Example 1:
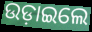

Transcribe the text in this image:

ଉଡ଼ାଇଲେ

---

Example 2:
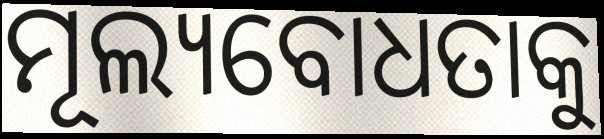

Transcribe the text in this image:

ମୂଲ୍ୟବୋଧତାକୁ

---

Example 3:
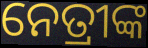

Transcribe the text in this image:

ନେତ୍ରୀଙ୍କ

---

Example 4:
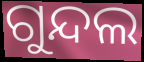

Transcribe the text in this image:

ଗୁନ୍ଦଲ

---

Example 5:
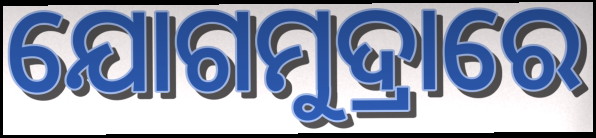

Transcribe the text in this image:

ଯୋଗମୁଦ୍ରାରେ